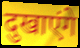
दुखाएंगे